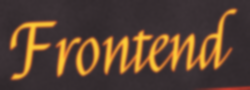
Frontend